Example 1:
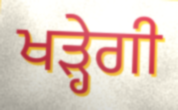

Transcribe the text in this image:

ਖੜ੍ਹੇਗੀ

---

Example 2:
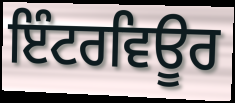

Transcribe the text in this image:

ਇੰਟਰਵਿਊਰ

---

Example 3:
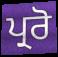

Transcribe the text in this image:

ਪ੍ਰਰੋ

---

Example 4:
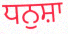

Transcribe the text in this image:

ਧਨੁਸ਼ਾ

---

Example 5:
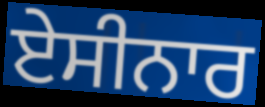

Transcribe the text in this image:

ਏਸੀਨਾਰ